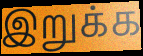
இறுக்க